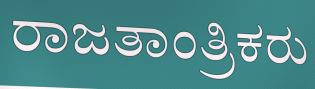
ರಾಜತಾಂತ್ರಿಕರು